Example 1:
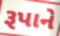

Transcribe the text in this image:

રૂપાને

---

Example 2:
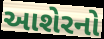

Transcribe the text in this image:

આશેરનો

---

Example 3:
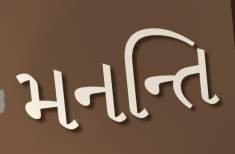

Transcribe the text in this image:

મનન્તિ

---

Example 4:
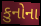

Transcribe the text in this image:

કુનોના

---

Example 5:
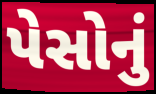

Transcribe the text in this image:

પેસોનું